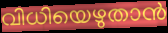
വിധിയെഴുതാൻ